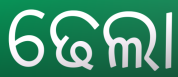
ଢେଲା